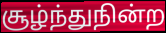
சூழ்ந்துநின்ற